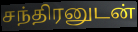
சந்திரனுடன்